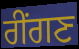
ਰੀਂਗਣ